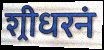
श्रीधरनं